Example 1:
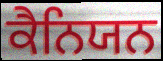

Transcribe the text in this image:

ਕੈਨਿਯਨ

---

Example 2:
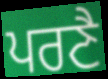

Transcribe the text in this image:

ਪਰਣੈ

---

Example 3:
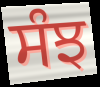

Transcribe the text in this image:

ਸੰਝ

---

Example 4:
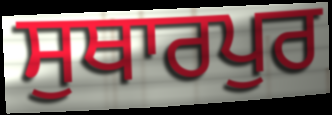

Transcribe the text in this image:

ਸੁਥਾਰਪੁਰ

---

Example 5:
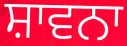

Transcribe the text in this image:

ਸ਼ਾਵਨਾ